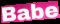
Babe